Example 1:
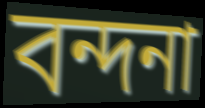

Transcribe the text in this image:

বন্দনা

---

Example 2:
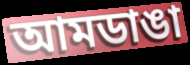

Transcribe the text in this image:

আমডাঙা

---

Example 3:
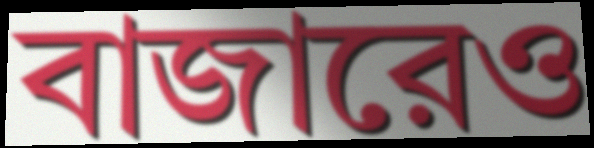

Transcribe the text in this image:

বাজারেও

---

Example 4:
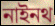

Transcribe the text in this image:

নাইনথ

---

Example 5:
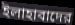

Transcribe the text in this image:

ইলাহাবাদের